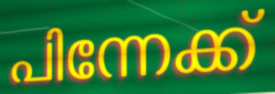
പിന്നേക്ക്